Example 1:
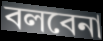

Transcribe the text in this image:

বলবেনা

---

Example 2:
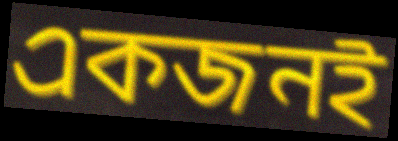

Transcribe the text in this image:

একজনই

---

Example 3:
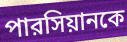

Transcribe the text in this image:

পারসিয়ানকে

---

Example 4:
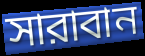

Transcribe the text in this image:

সারাবান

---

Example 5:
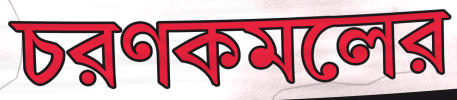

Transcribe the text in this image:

চরণকমলের